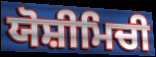
ਯੋਸ਼ੀਮਿਚੀ